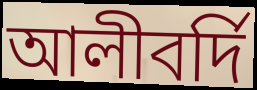
আলীবর্দি